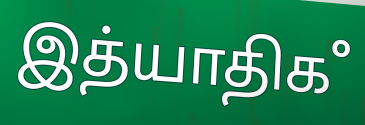
இத்யாதிகஂ